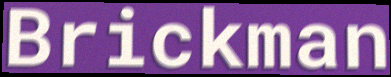
Brickman